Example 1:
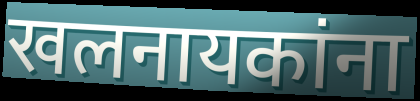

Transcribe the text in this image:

खलनायकांना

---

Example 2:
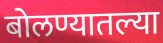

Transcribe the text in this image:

बोलण्यातल्या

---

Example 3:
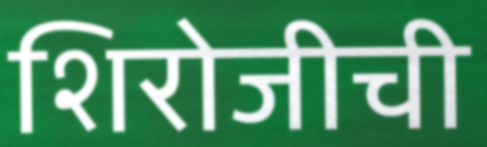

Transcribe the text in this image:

शिरोजीची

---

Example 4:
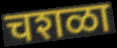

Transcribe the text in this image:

चशळा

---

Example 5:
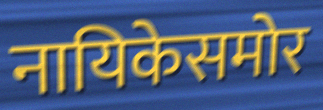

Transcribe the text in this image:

नायिकेसमोर